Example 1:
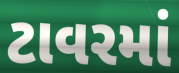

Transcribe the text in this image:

ટાવરમાં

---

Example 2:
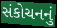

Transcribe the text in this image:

સંકોચનનું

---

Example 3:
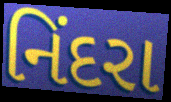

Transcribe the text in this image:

નિંદરા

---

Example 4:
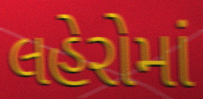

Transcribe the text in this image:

લહેરોમાં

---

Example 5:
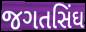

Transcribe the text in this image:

જગતસિંઘ